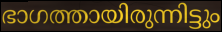
ഭാഗത്തായിരുന്നിട്ടും